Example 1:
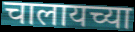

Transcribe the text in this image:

चालायच्या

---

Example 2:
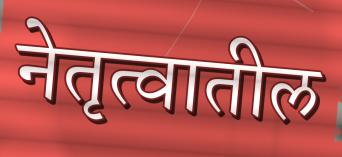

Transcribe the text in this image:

नेतृत्वातील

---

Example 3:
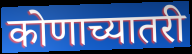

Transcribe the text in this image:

कोणाच्यातरी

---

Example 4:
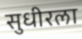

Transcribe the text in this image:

सुधीरला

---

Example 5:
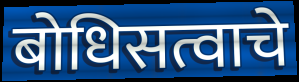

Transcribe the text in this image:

बोधिसत्वाचे